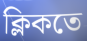
ক্লিকতে